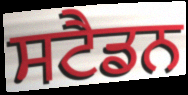
ਸਟੈਡਨ